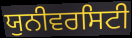
ਯੁਨੀਵਰਸਿਟੀ